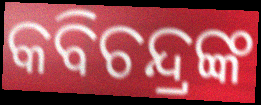
କବିଚନ୍ଦ୍ରଙ୍କ